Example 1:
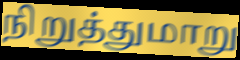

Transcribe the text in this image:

நிறுத்துமாறு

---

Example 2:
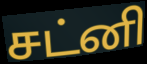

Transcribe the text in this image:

சட்னி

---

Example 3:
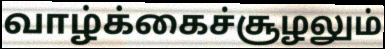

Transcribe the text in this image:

வாழ்க்கைச்சூழலும்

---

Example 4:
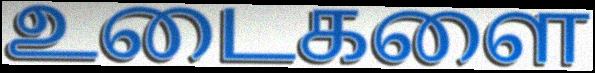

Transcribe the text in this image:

உடைகளை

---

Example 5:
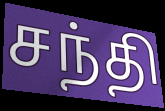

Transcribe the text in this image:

சந்தி